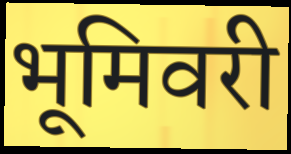
भूमिवरी